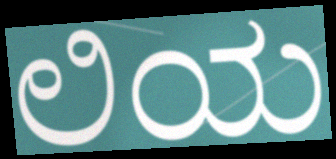
ಲಿಯ